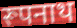
रूपनाथ